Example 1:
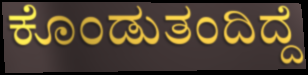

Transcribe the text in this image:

ಕೊಂಡುತಂದಿದ್ದೆ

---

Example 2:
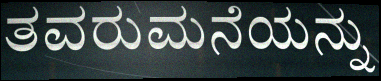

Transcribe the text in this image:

ತವರುಮನೆಯನ್ನು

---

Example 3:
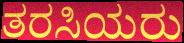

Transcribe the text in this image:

ತರಸಿಯರು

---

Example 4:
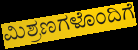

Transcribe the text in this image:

ಮಿಶ್ರಣಗಳೊಂದಿಗೆ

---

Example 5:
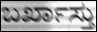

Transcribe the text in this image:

ಬರ್ಖಾಸ್ತು